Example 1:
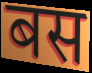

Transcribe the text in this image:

बस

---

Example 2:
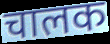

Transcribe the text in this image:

चालक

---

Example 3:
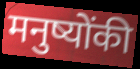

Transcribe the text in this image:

मनुष्योंकी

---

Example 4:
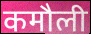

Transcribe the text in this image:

कमौली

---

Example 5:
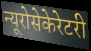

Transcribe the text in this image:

न्यूरोसेकेरेटरी